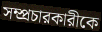
সম্প্রচারকারীকে